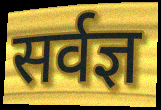
सर्वज्ञ